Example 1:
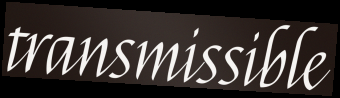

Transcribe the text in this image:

transmissible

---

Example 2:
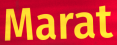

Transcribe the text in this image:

Marat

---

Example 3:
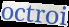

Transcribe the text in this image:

octroi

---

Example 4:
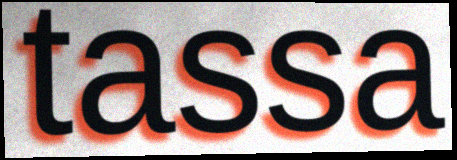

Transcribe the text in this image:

tassa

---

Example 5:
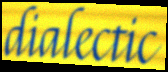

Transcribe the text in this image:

dialectic